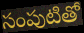
సంపుటితో